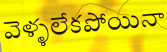
వెళ్ళలేకపోయినా